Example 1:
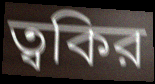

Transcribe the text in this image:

ত্বকির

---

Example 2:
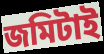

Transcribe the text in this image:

জমিটাই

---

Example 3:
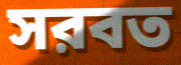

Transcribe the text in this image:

সরবত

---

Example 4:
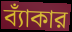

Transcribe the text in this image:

ব্যাঁকার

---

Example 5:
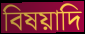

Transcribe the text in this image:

বিষয়াদি